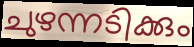
ചുഴന്നടിക്കും